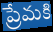
ప్రేమకి